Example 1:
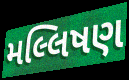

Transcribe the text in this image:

મલ્લિષણ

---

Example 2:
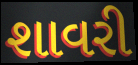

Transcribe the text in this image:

શાવરી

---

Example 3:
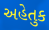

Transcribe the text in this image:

અહેતુક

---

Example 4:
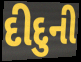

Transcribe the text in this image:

દીદુની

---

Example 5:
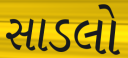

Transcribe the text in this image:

સાડલો